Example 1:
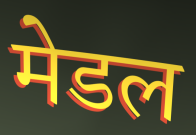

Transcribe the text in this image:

मेडल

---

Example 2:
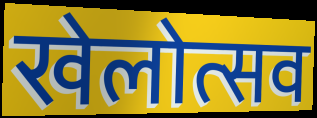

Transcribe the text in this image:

खेलोत्सव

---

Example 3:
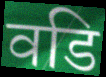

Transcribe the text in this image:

वडि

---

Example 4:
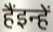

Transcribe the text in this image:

हैंइन्हें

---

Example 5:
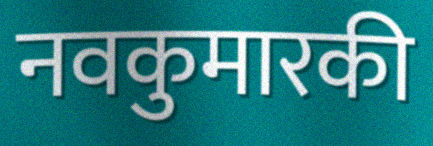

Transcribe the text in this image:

नवकुमारकी